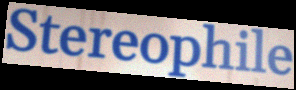
Stereophile